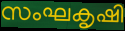
സംഘകൃഷി